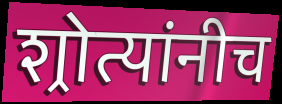
श्रोत्यांनीच